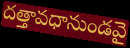
దత్తావధానుండవై